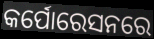
କର୍ପୋରେସନରେ